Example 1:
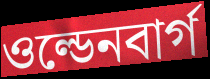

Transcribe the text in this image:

ওল্ডেনবার্গ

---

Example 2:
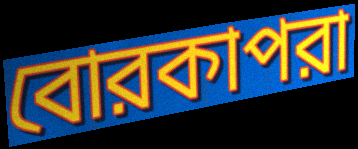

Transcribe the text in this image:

বোরকাপরা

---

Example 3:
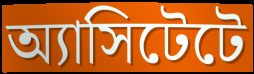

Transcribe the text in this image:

অ্যাসিটেটে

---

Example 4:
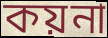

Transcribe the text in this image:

কয়না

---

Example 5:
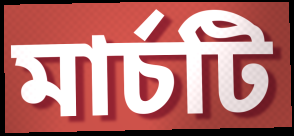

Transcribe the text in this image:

মার্চটি